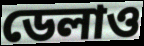
ডেলাও